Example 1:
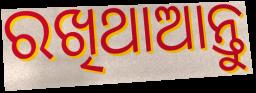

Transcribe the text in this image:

ରଖିଥାଆନ୍ତୁ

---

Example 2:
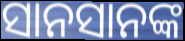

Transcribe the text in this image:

ସାନସାନଙ୍କ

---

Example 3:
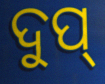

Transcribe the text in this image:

ଦୁପ୍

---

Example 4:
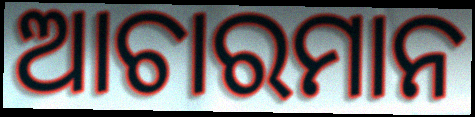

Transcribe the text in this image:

ଆଚାରମାନ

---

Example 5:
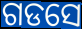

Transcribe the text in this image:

ଗଡସେ